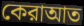
কেরাআত